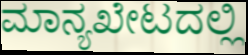
ಮಾನ್ಯಖೇಟದಲ್ಲಿ